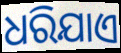
ଧରିଯାଏ